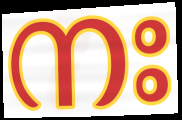
നഃ